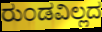
ರುಂಡವಿಲ್ಲದ